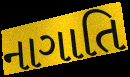
નાગાતિ